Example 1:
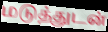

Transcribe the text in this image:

மடுத்துடன்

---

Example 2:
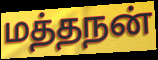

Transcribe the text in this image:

மத்தநன்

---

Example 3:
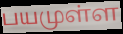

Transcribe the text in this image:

பயமுள்ள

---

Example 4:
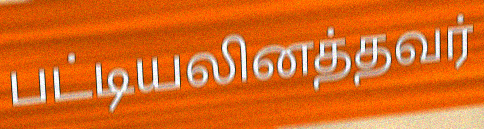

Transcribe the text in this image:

பட்டியலினத்தவர்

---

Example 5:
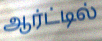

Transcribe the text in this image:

ஆர்ட்டில்